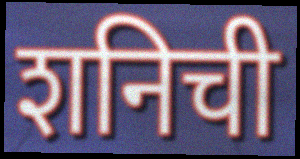
शनिची